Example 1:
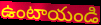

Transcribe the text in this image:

ఉంటాయండి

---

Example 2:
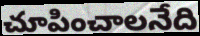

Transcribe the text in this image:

చూపించాలనేది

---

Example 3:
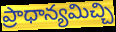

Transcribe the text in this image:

ప్రాధాన్యమిచ్చి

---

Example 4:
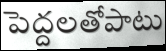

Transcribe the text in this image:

పెద్దలతోపాటు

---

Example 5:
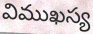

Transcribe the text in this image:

విముఖస్య